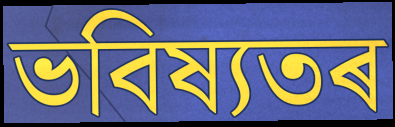
ভবিষ্যতৰ